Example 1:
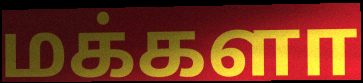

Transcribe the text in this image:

மக்களா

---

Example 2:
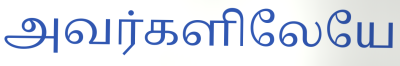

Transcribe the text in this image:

அவர்களிலேயே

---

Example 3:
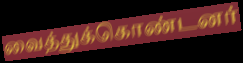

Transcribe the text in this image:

வைத்துக்கொண்டனர்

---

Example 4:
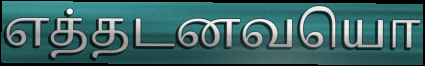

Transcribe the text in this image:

எத்தடனவயொ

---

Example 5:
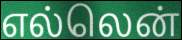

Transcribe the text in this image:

எல்லென்